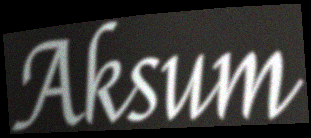
Aksum